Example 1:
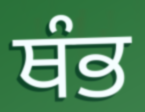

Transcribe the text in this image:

ਥੰਭ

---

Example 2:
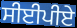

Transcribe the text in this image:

ਸੀਈਪੀਏ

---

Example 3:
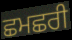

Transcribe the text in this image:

ਛਮਛਰੀ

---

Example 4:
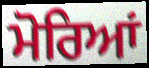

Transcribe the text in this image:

ਮੋਰਿਆਂ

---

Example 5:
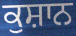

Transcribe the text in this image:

ਕੁਸ਼ਾਨ